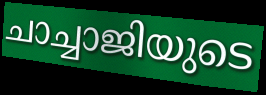
ചാച്ചാജിയുടെ